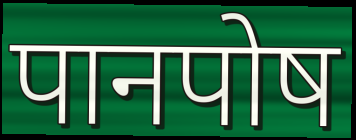
पानपोष